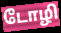
டோழி